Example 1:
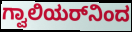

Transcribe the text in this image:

ಗ್ವಾಲಿಯರ್‌ನಿಂದ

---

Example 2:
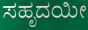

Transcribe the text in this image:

ಸಹೃದಯೀ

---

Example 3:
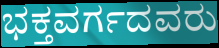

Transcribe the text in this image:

ಭಕ್ತವರ್ಗದವರು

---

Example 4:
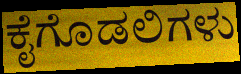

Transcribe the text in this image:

ಕೈಗೊಡಲಿಗಳು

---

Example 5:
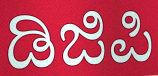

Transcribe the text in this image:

ಡಿಜಿಪಿ